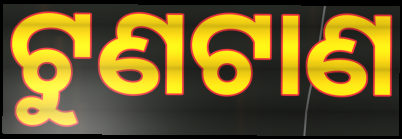
ଟୁଣଟାଣ